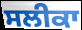
ਸਲੀਕਾ